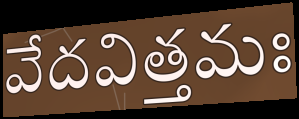
వేదవిత్తమః